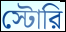
স্টোরি